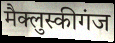
मैक्लुस्कीगंज